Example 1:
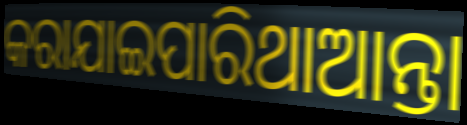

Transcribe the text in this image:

କରାଯାଇପାରିଥାଆନ୍ତା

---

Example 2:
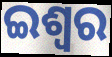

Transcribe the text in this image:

ଇଶ୍ଵର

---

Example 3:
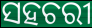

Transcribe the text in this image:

ସହଚରୀ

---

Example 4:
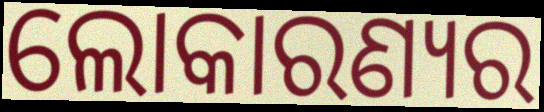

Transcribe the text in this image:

ଲୋକାରଣ୍ୟର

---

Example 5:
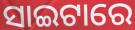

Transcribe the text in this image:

ସାଇଟାରେ